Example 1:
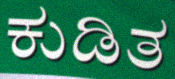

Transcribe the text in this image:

ಕುಡಿತ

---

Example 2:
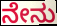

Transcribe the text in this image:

ನೇನು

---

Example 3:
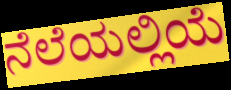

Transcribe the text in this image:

ನೆಲೆಯಲ್ಲಿಯೆ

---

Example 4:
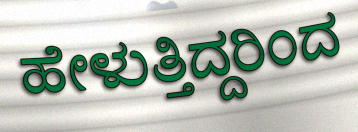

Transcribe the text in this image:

ಹೇಳುತ್ತಿದ್ದರಿಂದ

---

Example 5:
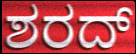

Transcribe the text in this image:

ಶರದ್